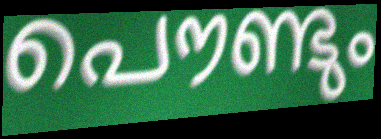
പൌണ്ടും